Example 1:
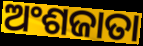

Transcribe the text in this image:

ଅଂଶଜାତା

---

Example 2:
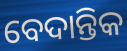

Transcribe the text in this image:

ବେଦାନ୍ତିକ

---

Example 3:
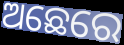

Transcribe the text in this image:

ଅଛେରେ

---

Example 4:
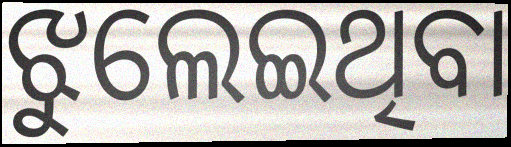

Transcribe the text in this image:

ଝୁଲେଇଥିବା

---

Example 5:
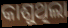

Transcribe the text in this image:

କାଶୁଥିଲା